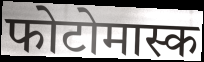
फोटोमास्क